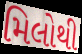
મિલોથી